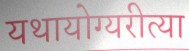
यथायोग्यरीत्या